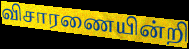
விசாரணையின்றி